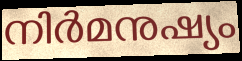
നിർമനുഷ്യം